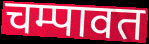
चम्पावत